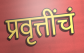
प्रवृत्तींचं